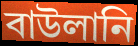
বাউলানি